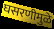
घसरणीमुळे